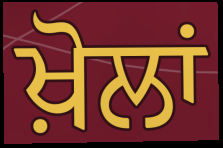
ਖ਼ੋਲਾਂ